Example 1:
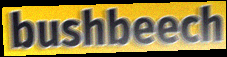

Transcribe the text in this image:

bushbeech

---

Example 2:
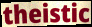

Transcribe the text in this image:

theistic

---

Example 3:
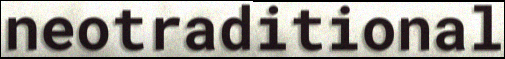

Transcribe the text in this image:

neotraditional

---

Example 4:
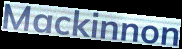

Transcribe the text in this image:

Mackinnon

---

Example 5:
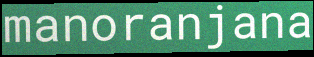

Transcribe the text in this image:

manoranjana